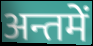
अन्तमें